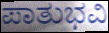
ಪಾತುಭವಿ